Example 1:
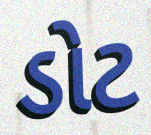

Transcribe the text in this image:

ડોટ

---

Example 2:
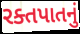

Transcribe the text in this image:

રક્તપાતનું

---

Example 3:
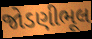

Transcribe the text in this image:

જોડણીભૂલ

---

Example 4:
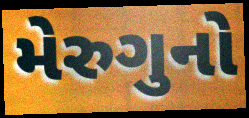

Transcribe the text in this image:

મેરુગુનો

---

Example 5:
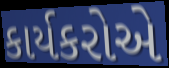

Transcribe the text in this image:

કાર્યકરોએ